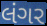
લંગર